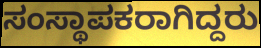
ಸಂಸ್ಥಾಪಕರಾಗಿದ್ದರು